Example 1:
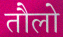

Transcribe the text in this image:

तौलो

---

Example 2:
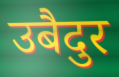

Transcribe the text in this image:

उबैदुर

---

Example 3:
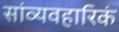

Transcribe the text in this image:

सांव्यवहारिकं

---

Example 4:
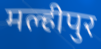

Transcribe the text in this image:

मल्हीपुर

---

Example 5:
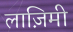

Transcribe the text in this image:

लाज़िमी